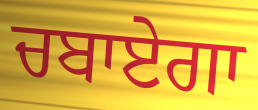
ਚਬਾਏਗਾ